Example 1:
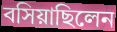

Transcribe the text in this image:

বসিয়াছিলেন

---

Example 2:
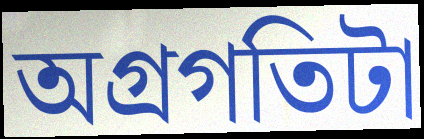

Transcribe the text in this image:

অগ্রগতিটা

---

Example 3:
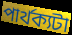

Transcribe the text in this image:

পার্থক্যটা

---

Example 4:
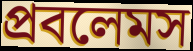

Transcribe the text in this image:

প্রবলেমস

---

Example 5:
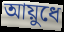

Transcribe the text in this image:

আয়ুধে